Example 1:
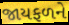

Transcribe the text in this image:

જાયફળને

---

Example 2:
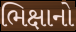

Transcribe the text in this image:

ભિક્ષાનો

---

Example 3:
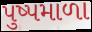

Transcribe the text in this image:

પુષ્પમાળા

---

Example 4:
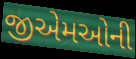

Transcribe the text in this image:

જીએમઓની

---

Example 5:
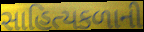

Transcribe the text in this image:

સાહિત્યકળાની